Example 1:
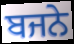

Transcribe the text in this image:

ਬਜਨੇ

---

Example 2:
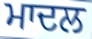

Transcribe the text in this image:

ਮਾਦਲ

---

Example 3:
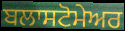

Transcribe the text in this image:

ਬਲਾਸਟੋਮੇਅਰ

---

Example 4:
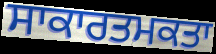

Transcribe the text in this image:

ਸਾਕਾਰਤਮਕਤਾ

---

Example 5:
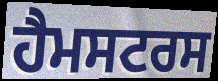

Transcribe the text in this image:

ਹੈਮਸਟਰਸ